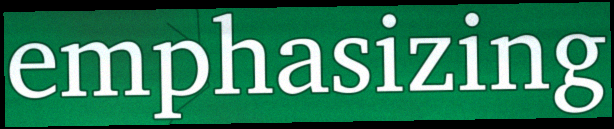
emphasizing